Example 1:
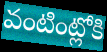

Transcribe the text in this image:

వంటింట్లోకి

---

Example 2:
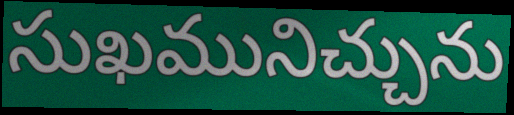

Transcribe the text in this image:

సుఖమునిచ్చును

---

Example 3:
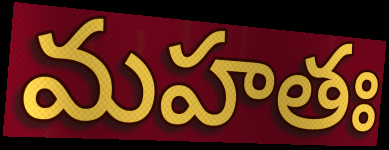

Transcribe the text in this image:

మహతః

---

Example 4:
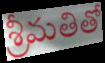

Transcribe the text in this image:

శ్రీమతితో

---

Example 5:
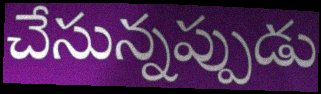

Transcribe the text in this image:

చేసున్నప్పుడు